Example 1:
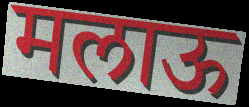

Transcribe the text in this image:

मलाऊ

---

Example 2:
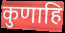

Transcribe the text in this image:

कुणाहि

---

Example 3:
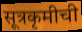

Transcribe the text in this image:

सूत्रकृमीची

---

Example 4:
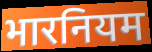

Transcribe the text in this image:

भारनियम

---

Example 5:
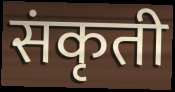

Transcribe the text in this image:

संकृती